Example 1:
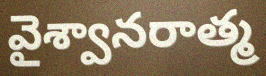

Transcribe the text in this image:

వైశ్వానరాత్మ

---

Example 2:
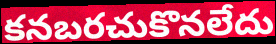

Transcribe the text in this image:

కనబరచుకొనలేదు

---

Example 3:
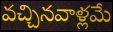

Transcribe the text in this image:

వచ్చినవాళ్లమే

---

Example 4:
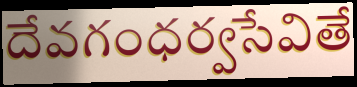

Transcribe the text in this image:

దేవగంధర్వసేవితే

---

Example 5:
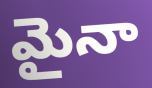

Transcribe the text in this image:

మైనా